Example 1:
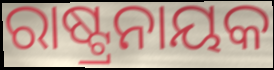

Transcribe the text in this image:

ରାଷ୍ଟ୍ରନାୟକ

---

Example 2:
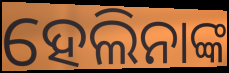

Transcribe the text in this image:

ହେଲିନାଙ୍କ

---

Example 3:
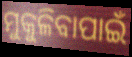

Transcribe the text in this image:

ମୁକୁଳିବାପାଇଁ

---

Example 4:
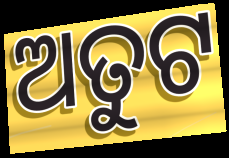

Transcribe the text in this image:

ଅତୁଟ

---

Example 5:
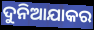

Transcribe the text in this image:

ଦୁନିଆଯାକର